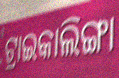
ଟ୍ରାଇକାଲିଙ୍ଗା